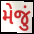
મેજું